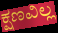
ಕ್ಷಣವಿಲ್ಲ